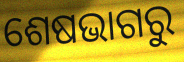
ଶେଷଭାଗରୁ